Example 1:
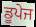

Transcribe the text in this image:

ਡੂਪੇਜ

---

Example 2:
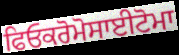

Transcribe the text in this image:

ਫਿਓਕਰੋਮੋਸਾਈਟੋਮਾ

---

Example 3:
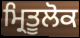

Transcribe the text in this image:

ਮ੍ਰਿਤੂਲੋਕ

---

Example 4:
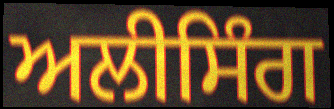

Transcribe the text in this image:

ਅਲੀਸਿੰਗ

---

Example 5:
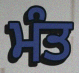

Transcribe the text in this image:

ਮੰਤ